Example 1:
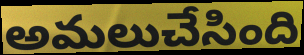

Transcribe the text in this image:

అమలుచేసింది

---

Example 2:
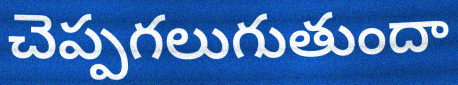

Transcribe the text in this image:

చెప్పగలుగుతుందా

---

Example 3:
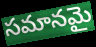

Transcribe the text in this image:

సమానమై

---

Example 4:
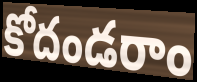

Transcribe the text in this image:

కోదండరాం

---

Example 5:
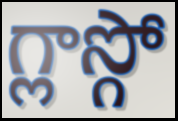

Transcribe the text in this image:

గ్లాస్గో